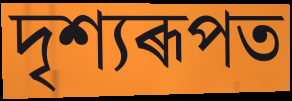
দৃশ্যৰূপত